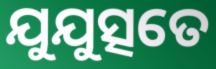
ଯୁଯୁତ୍ସତେ